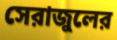
সেরাজুলের